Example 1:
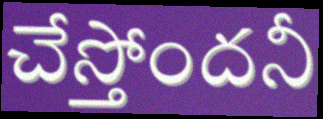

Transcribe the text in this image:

చేస్తోందనీ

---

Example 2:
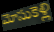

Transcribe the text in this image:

మోసుకెళ్లి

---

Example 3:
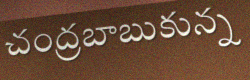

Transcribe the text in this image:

చంద్రబాబుకున్న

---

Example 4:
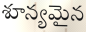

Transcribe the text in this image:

శూన్యమైన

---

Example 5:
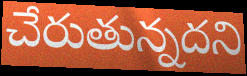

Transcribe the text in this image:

చేరుతున్నదని